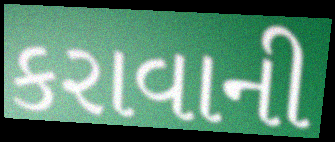
કરાવાની